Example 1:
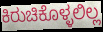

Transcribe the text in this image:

ಕಿರುಚಿಕೊಳ್ಳಲಿಲ್ಲ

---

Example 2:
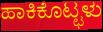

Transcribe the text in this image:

ಹಾಕಿಕೊಟ್ಟಳು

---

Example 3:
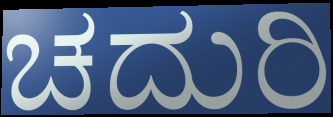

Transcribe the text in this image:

ಚದುರಿ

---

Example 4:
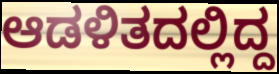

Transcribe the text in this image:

ಆಡಳಿತದಲ್ಲಿದ್ದ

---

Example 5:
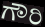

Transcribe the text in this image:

ಗೌರಿ